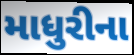
માધુરીના